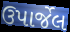
ઉપાર્જેલ